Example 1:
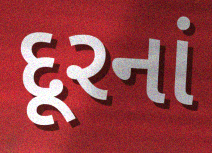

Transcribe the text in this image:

દૂરનાં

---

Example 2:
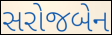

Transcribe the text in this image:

સરોજબેન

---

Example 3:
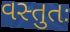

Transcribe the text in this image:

વસ્તુતઃ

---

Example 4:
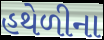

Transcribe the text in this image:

હથેળીના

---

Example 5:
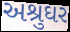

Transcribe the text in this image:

અશ્રુઘર